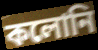
কলোনি